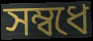
সম্বধে